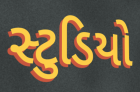
સ્ટુડિયો